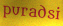
puradsi